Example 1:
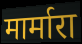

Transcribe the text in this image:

मार्मारा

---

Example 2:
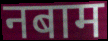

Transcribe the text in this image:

नबाम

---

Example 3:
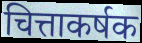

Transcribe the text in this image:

चित्ताकर्षक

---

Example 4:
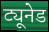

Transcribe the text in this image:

ट्यूनेड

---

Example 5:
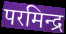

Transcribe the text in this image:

परमिन्द्र